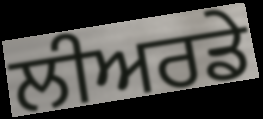
ਲੀਅਰਡੇ